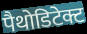
पैथोडिटेक्ट